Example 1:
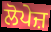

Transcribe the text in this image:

ਲੋਪੇਜ਼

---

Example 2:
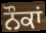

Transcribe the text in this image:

ਨੌਕਾਂ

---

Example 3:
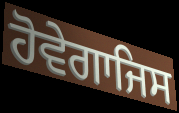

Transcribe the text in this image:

ਹੋਵੇਗਾਜਿਸ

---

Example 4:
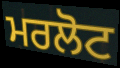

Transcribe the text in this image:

ਮਰਲੋਟ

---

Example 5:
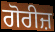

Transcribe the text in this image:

ਗੋਰੀਜ਼